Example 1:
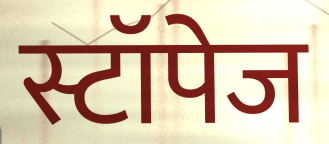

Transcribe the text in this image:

स्टॉपेज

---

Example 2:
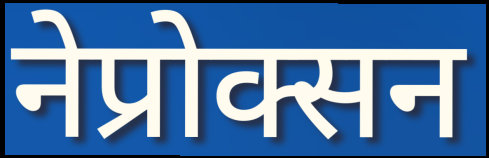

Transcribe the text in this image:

नेप्रोक्सन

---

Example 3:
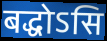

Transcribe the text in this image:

बद्धोऽसि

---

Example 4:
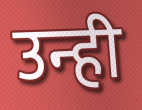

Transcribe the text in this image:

उन्ही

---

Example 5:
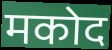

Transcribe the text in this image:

मकोद